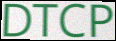
DTCP